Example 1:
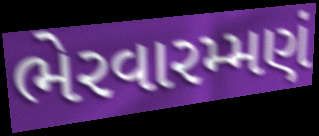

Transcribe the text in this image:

ભેરવારમ્મણં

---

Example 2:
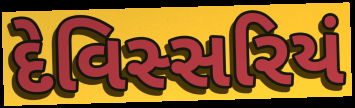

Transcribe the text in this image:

દેવિસ્સરિયં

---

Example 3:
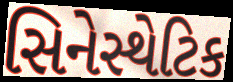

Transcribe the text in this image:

સિનેસ્થેટિક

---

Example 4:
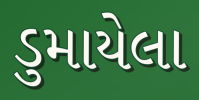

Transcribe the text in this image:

ડુમાયેલા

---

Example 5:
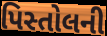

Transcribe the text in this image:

પિસ્તોલની